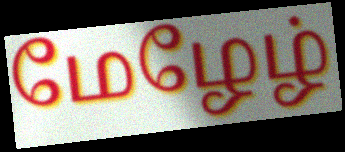
மேழேழ்